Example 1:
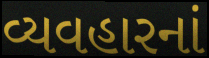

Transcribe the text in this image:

વ્યવહારનાં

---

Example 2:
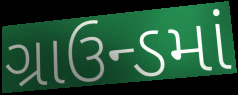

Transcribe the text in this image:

ગ્રાઉન્ડમાં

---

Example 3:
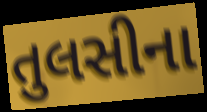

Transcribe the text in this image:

તુલસીના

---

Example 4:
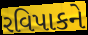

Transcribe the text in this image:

રવિપાકને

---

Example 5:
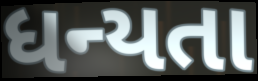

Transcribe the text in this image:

ધન્યતા